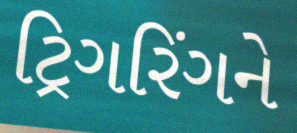
ટ્રિગરિંગને